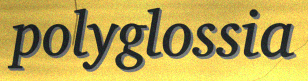
polyglossia